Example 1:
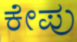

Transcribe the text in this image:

ಕೇಪು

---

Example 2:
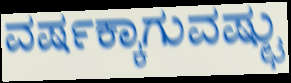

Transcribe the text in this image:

ವರ್ಷಕ್ಕಾಗುವಷ್ಟು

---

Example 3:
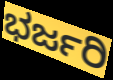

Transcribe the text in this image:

ಭರ್ಜರಿ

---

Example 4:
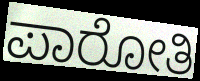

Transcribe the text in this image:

ಪಾರೋತಿ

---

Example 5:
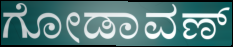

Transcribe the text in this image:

ಗೋಡಾವಣ್